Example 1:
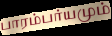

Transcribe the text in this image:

பாரம்பர்யமும்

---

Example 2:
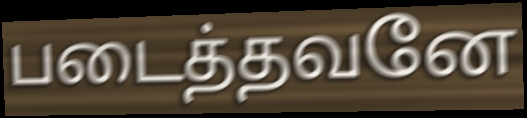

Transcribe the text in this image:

படைத்தவனே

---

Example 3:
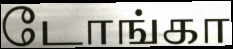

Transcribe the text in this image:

டோங்கா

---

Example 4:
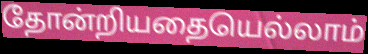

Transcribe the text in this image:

தோன்றியதையெல்லாம்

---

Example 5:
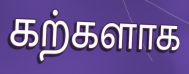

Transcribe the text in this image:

கற்களாக